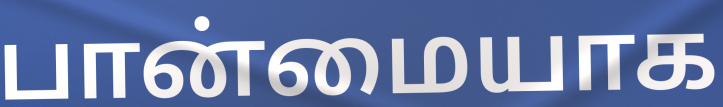
பான்மையாக